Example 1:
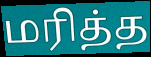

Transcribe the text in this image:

மரித்த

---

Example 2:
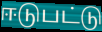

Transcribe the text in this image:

ஈடுபட்டு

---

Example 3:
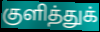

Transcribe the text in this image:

குளித்துக்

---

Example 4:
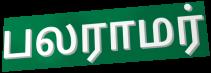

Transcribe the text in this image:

பலராமர்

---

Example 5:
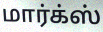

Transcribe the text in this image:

மார்க்ஸ்